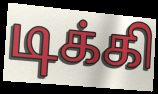
டிக்கி